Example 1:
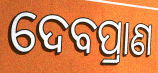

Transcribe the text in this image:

ଦେବପ୍ରାଣ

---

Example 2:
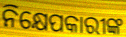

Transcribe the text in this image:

ନିକ୍ଷେପକାରୀଙ୍କ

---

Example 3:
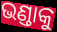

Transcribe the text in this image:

ଭଣ୍ଡାକୁ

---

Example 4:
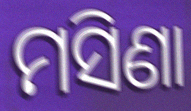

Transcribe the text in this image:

ମସିଣା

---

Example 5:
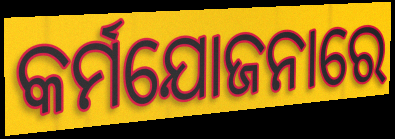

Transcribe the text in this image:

କର୍ମଯୋଜନାରେ